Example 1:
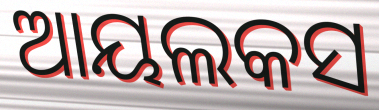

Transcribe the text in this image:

ଆୟଲକସ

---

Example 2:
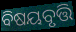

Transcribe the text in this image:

ବିଷୟବୃତ୍ତି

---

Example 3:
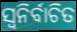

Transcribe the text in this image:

ସ୍ବନିର୍ବାଚିତ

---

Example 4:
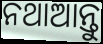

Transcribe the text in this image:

ନଥାଆନ୍ତୁ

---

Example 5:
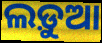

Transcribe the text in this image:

ଲଡ଼ୁଆ